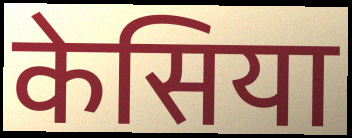
केसिया